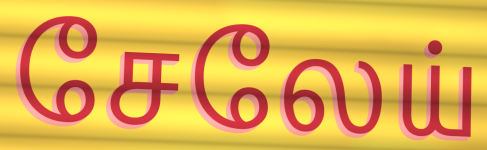
சேலேய்